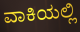
ವಾಕಿಯಲ್ಲಿ